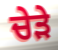
ਚੇੜੇ